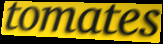
tomates